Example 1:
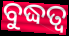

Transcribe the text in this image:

ବୁଦ୍ଧତ୍ଵ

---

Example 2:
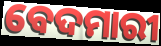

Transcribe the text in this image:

ବେଦମାରୀ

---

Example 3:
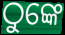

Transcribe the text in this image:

ଠୁଙ୍କେ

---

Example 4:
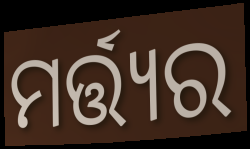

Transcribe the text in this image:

ମର୍ତ୍ତ୍ୟର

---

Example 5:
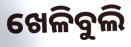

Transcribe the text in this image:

ଖେଳିବୁଲି